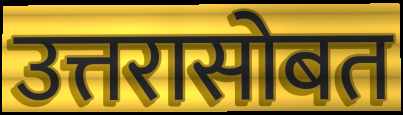
उत्तरासोबत